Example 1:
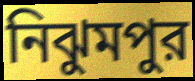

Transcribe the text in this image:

নিঝুমপুর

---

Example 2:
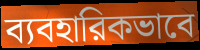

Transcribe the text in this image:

ব্যবহারিকভাবে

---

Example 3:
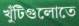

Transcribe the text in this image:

খুঁটিগুলোতে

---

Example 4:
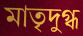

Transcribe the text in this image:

মাতৃদুগ্ধ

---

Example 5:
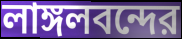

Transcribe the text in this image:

লাঙ্গলবন্দের